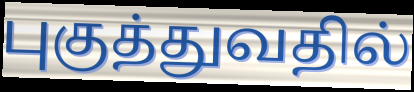
புகுத்துவதில்